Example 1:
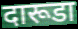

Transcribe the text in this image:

दारूडा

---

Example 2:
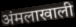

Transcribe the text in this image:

अंमलाखाली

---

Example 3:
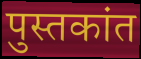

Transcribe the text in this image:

पुस्तकांत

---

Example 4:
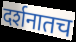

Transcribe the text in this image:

दर्शनातच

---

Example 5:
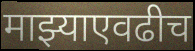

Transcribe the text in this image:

माझ्याएवढीच